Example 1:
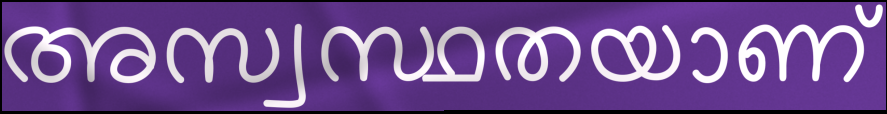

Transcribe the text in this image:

അസ്വസ്ഥതയാണ്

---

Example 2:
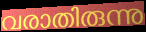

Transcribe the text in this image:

വരാതിരുന്നു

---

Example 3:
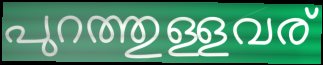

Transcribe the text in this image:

പുറത്തുള്ളവര്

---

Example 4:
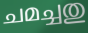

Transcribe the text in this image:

ചമച്ചതു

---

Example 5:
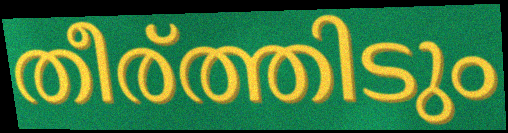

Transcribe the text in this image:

തീര്ത്തിടും